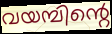
വയമ്പിന്റെ